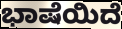
ಭಾಷೆಯಿದೆ